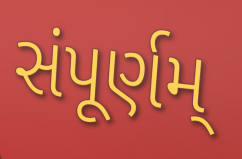
સંપૂર્ણમ્